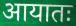
आयातः